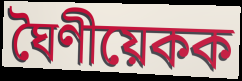
ঘৈণীয়েকক